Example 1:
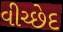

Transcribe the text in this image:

વીચ્છેદ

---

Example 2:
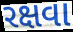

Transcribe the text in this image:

રક્ષવા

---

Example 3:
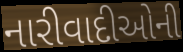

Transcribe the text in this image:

નારીવાદીઓની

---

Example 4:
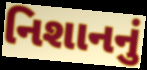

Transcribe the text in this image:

નિશાનનું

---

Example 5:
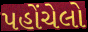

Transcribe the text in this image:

પહોંચેલો